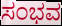
ಸಂಭವ